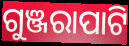
ଗୁଞ୍ଜରାପାଟି